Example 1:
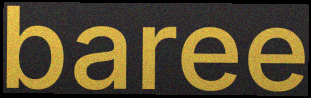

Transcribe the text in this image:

baree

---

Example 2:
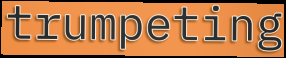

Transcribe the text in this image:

trumpeting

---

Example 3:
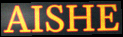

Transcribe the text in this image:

AISHE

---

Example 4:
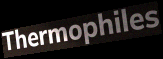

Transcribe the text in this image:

Thermophiles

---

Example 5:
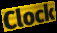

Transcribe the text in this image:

Clock